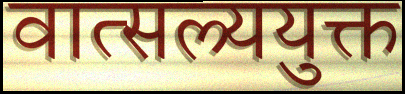
वात्सल्ययुक्त